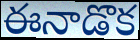
ఈనాడొక